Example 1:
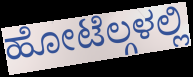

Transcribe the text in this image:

ಹೋಟೆಲ್ಗಳಲ್ಲಿ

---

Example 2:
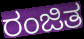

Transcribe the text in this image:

ರಂಜಿತ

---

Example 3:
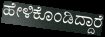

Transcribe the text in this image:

ಹೇಳಿಕೊಂಡಿದ್ದಾರೆ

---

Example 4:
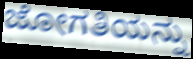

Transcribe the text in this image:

ಜೋಗತಿಯನ್ನು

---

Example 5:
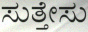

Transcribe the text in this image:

ಸುತ್ತೇಸು